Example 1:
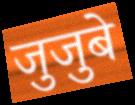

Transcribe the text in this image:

जुजुबे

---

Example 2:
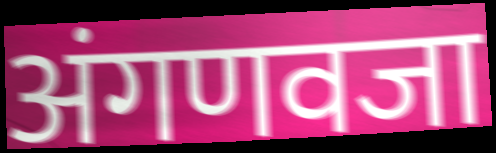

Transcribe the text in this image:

अंगणवजा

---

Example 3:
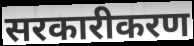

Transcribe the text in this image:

सरकारीकरण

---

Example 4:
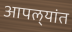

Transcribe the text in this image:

आपल्यांत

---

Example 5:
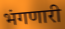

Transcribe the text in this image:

भंगणारी